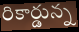
రికార్డున్న